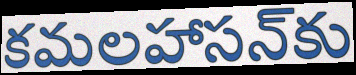
కమలహాసన్‌కు